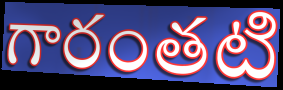
గారంతటి